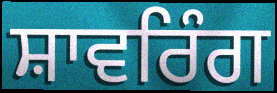
ਸ਼ਾਵਰਿੰਗ